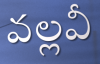
వల్లవీ